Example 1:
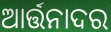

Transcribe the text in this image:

ଆର୍ତ୍ତନାଦର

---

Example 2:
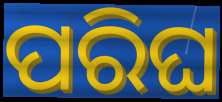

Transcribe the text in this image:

ପରିଘ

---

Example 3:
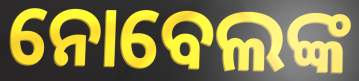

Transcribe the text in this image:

ନୋବେଲଙ୍କ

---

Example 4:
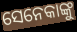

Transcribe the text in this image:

ସେନେକାଙ୍କୁ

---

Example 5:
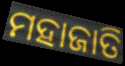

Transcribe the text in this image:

ମହାଜାତି